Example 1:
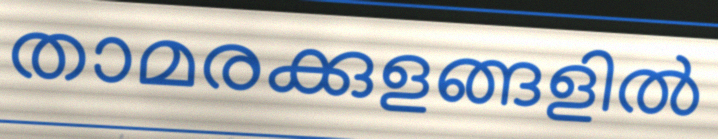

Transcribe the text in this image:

താമരക്കുളങ്ങളിൽ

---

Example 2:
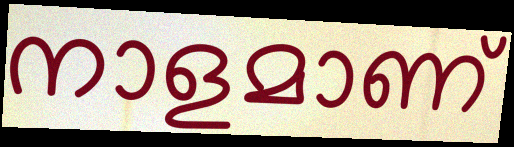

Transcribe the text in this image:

നാളമാണ്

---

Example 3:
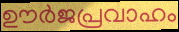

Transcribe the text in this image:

ഊർജപ്രവാഹം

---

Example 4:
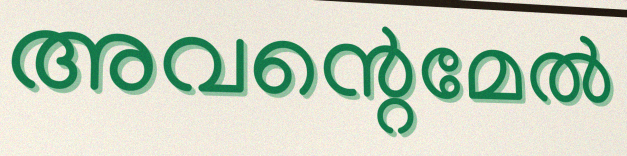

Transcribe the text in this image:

അവന്റെമേൽ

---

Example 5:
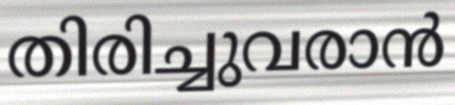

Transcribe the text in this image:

തിരിച്ചുവരാൻ